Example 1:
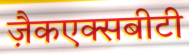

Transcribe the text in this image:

ज़ैकएक्सबीटी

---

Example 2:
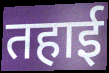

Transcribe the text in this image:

तहाई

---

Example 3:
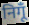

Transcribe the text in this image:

निगूँ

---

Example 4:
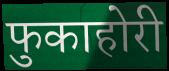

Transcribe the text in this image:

फुकाहोरी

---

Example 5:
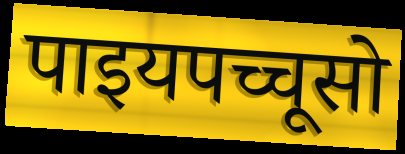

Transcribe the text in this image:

पाइयपच्चूसो